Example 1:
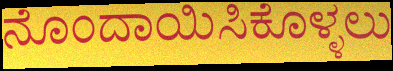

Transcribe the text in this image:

ನೊಂದಾಯಿಸಿಕೊಳ್ಳಲು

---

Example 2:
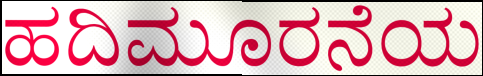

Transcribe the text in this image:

ಹದಿಮೂರನೆಯ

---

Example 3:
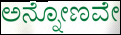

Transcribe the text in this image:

ಅನ್ನೋಣವೇ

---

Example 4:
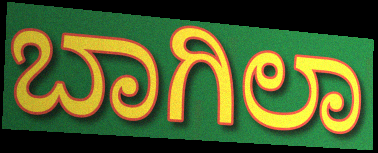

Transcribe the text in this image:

ಬಾಗಿಲಾ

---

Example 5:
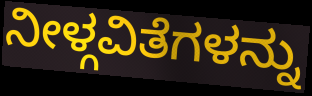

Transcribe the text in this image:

ನೀಳ್ಗವಿತೆಗಳನ್ನು